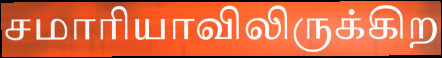
சமாரியாவிலிருக்கிற